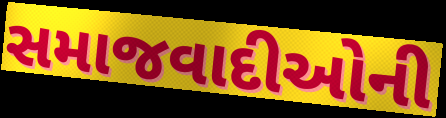
સમાજવાદીઓની